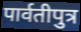
पार्वतीपुत्र